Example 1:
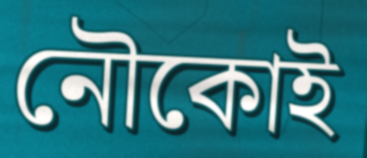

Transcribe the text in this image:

নৌকোই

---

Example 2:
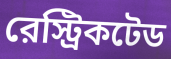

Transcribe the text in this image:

রেস্ট্রিকটেড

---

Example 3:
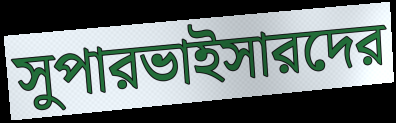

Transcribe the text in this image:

সুপারভাইসারদের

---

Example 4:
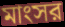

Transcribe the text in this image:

মাংসর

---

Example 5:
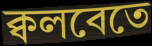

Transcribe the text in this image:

ক্বলবেতে